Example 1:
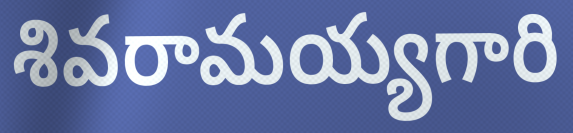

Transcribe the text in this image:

శివరామయ్యగారి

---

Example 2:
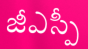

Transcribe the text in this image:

జీఎస్పీ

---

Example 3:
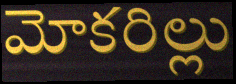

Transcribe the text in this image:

మోకరిల్లు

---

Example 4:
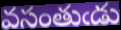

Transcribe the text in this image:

వసంతుఁడు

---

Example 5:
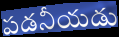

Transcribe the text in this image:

పడనీయడు